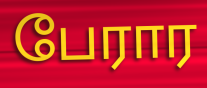
பேரார